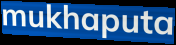
mukhaputa